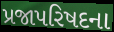
પ્રજાપરિષદના